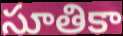
సూతికా